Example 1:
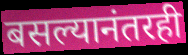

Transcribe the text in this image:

बसल्यानंतरही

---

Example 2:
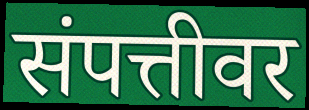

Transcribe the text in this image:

संपत्तीवर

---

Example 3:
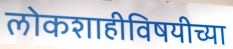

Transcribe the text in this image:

लोकशाहीविषयीच्या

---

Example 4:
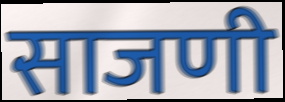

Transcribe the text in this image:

साजणी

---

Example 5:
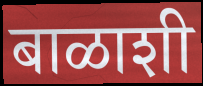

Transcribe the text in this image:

बाळाशी